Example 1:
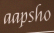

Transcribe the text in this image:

aapsho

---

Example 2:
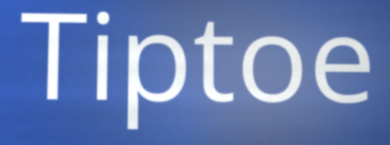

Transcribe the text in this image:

Tiptoe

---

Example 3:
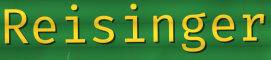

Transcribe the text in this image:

Reisinger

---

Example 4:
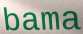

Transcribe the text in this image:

bama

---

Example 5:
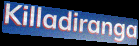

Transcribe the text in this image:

Killadiranga